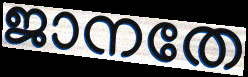
ജാനതേ